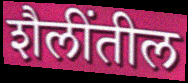
शैलींतील